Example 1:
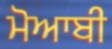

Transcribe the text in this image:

ਮੋਆਬੀ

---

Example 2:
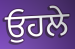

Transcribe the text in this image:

ਓੁਹਲੇ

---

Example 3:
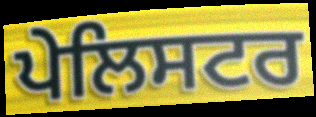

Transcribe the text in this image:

ਪੇਲਿਸਟਰ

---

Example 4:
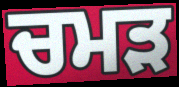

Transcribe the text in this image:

ਚਮੜ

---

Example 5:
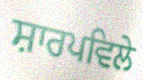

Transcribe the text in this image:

ਸ਼ਾਰਪਵਿਲੇ